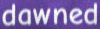
dawned